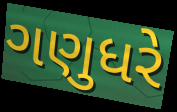
ગણુધરે